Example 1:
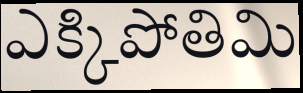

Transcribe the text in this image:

ఎక్కిపోతిమి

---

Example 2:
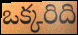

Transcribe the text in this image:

ఒక్కరిది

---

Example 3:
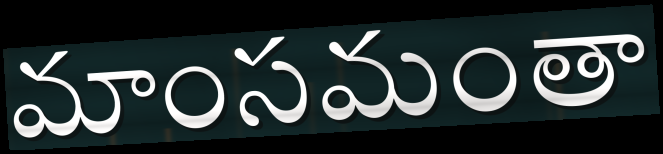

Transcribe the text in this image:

మాంసమంతా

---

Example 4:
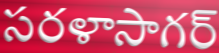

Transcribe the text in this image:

సరళాసాగర్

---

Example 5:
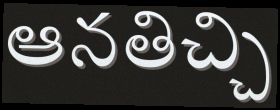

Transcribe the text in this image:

ఆనతిచ్చి